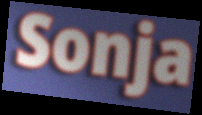
Sonja